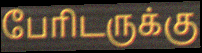
பேரிடருக்கு